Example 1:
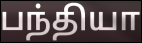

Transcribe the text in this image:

பந்தியா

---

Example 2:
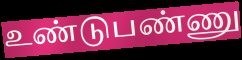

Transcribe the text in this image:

உண்டுபண்ணு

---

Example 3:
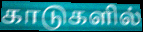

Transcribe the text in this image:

காடுகளில்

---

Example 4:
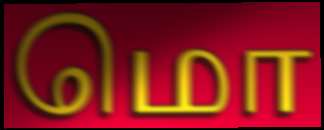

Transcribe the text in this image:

மொ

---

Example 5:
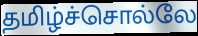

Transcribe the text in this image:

தமிழ்ச்சொல்லே